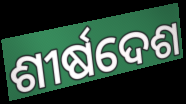
ଶୀର୍ଷଦେଶ